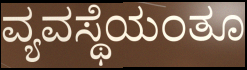
ವ್ಯವಸ್ಥೆಯಂತೂ